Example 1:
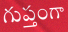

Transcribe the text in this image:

గుప్తంగా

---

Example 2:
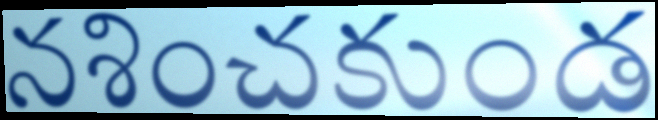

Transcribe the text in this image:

నశించకుండ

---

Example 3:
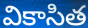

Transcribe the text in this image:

వికాసిత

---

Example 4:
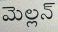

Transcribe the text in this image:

మెల్లన్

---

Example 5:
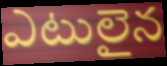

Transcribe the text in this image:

ఎటులైన